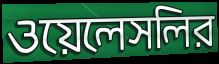
ওয়েলেসলির